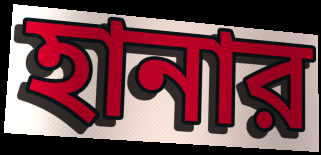
হানার